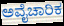
ಅವೈಚಾರಿಕ